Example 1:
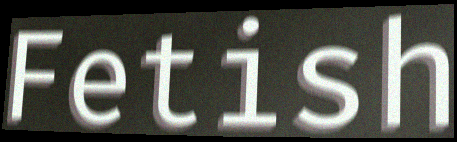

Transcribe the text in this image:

Fetish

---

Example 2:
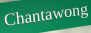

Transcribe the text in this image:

Chantawong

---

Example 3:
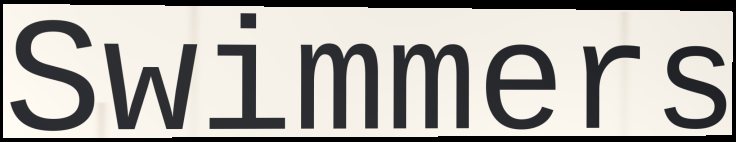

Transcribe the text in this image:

Swimmers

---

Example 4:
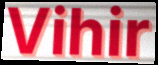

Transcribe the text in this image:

Vihir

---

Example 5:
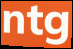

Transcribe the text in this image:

ntg